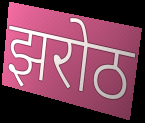
झरोठ